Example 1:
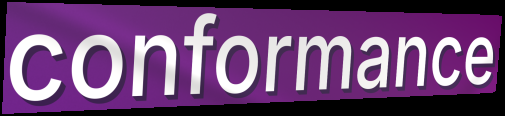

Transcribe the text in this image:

conformance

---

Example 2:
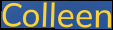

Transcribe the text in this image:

Colleen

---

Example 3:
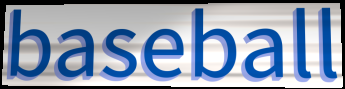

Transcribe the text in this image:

baseball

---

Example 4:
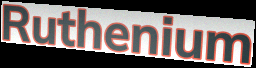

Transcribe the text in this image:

Ruthenium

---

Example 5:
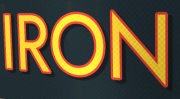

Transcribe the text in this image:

IRON